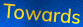
Towards